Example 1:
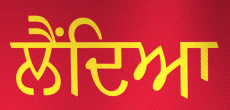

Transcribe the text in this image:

ਲੈਂਦਿਆ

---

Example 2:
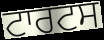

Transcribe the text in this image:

ਟਾਰਟਸ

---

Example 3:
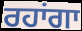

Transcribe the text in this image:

ਰਹਾਂਗਾ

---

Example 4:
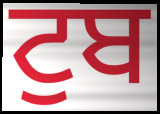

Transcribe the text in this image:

ਟੁਬ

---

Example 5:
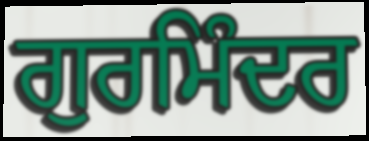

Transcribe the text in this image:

ਗੁਰਮਿੰਦਰ